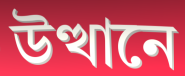
উত্থানে